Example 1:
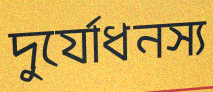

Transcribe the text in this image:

দুর্যোধনস্য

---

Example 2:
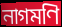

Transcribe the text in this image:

নাগমণি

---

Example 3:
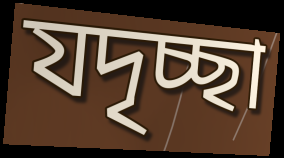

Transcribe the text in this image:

যদৃচ্ছা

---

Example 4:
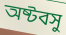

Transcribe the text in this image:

অষ্টবসু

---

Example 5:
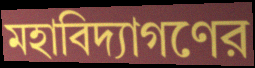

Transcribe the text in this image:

মহাবিদ্যাগণের